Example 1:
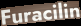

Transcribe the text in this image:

Furacilin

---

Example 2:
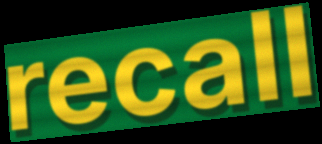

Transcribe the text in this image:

recall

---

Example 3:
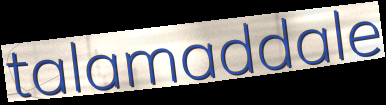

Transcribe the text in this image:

talamaddale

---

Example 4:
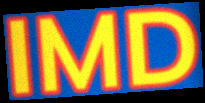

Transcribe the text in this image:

IMD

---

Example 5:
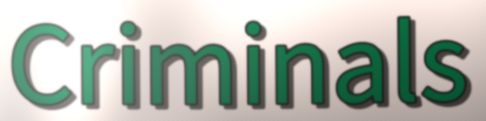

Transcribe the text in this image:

Criminals